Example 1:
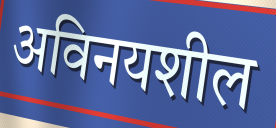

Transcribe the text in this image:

अविनयशील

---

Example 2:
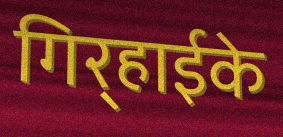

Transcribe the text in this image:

गिर्‍हाईके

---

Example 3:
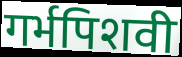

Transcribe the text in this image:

गर्भपिशवी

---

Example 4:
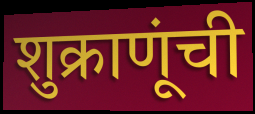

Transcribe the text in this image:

शुक्राणूंची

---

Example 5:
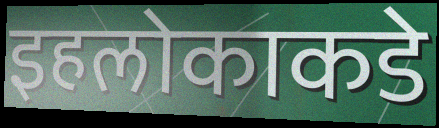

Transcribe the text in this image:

इहलोकाकडे